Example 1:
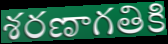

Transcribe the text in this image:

శరణాగతికి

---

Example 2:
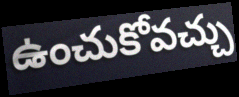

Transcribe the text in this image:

ఉంచుకోవచ్చు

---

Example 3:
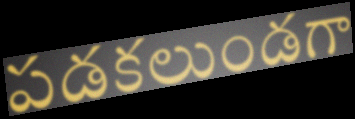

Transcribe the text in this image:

పడకలుండగా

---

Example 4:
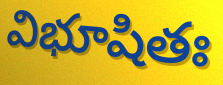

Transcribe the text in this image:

విభూషితః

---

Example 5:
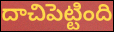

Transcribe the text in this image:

దాచిపెట్టింది